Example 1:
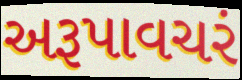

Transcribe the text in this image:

અરૂપાવચરં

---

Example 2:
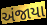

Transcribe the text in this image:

અંજાયા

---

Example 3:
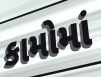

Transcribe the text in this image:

કામોમાં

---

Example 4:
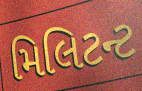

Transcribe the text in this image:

મિલિટન્ટ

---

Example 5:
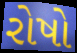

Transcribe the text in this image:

રોષો